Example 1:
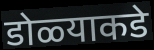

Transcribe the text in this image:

डोळ्याकडे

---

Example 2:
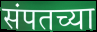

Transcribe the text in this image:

संपतच्या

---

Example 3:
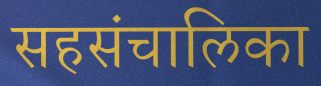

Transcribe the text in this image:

सहसंचालिका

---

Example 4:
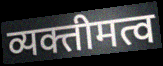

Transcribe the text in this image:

व्यक्तीमत्व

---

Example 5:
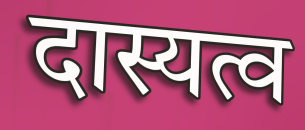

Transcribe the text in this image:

दास्यत्व